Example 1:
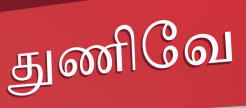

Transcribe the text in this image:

துணிவே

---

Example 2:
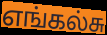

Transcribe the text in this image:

எங்கல்சு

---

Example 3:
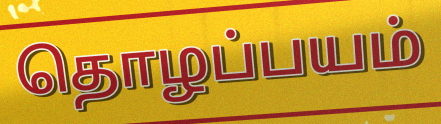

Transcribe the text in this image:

தொழப்பயம்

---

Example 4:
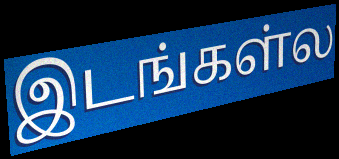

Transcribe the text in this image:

இடங்கள்ல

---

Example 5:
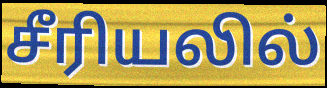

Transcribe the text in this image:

சீரியலில்